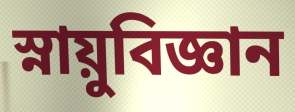
স্নায়ুবিজ্ঞান